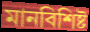
মানবিশিষ্ট